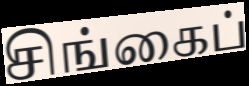
சிங்கைப்